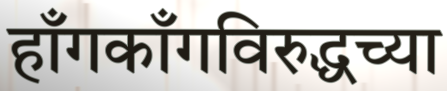
हाँगकाँगविरुद्धच्या